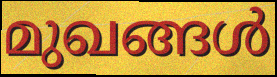
മുഖങ്ങൾ